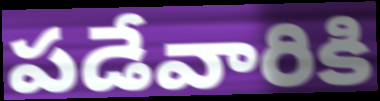
పడేవారికి